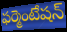
ఫర్మెంటేషన్